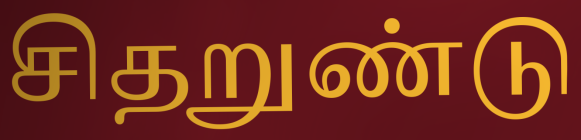
சிதறுண்டு